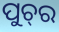
ପୁଚ୍‍ର